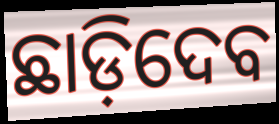
ଛାଡ଼ିଦେବ